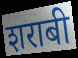
शराबी